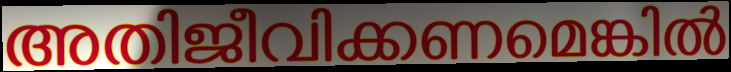
അതിജീവിക്കണമെങ്കിൽ